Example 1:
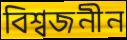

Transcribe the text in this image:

বিশ্বজনীন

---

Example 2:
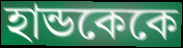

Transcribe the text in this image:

হান্ডকেকে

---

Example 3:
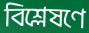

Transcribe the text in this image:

বিশ্লেষণে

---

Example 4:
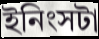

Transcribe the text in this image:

ইনিংসটা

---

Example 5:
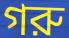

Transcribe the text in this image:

গরু